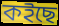
কইছে